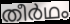
തീർഥം